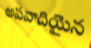
అపవాదియైన